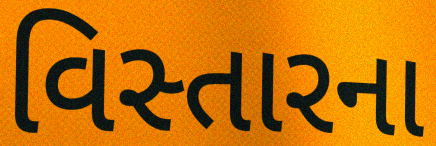
વિસ્તારના